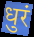
धुरं